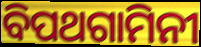
ବିପଥଗାମିନୀ